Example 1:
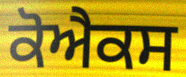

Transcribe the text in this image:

ਕੋਐਕਸ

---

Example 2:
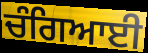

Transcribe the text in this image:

ਚੰਗਿਆਈ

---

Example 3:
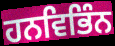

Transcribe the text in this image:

ਹਨਵਿਭਿੰਨ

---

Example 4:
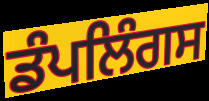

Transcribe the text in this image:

ਡੰਪਲਿੰਗਸ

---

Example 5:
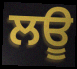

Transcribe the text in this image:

ਲਊ